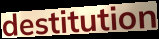
destitution